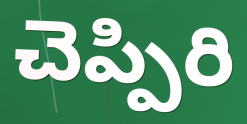
చెప్పిరి